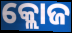
କ୍ଲୋଜ